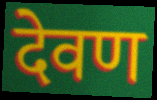
देवण